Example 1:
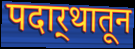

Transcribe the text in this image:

पदार्थातून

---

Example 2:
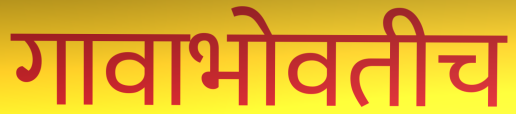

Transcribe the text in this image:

गावाभोवतीच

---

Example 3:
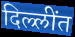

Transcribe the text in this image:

दिल्लींत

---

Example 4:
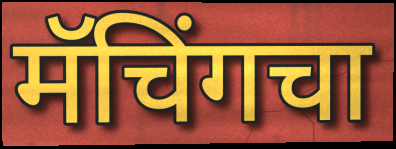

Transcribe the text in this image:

मॅचिंगचा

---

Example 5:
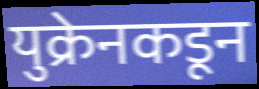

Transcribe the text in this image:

युक्रेनकडून